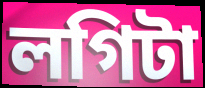
লগিটা